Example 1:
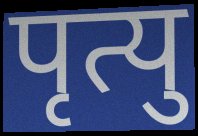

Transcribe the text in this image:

पृत्यु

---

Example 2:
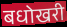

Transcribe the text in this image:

बधोखरी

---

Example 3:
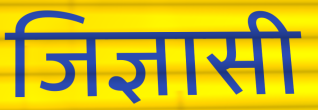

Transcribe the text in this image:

जिज्ञासी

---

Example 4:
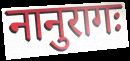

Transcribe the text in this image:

नानुरागः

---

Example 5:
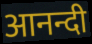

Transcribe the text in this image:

आनन्दी